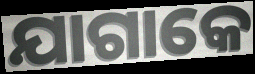
ଯାଗାକେ